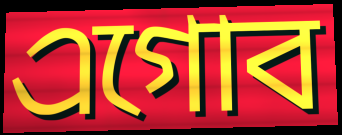
এগোব